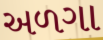
અળગા